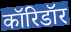
कॉरिडॉर